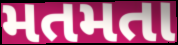
મતમતા